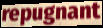
repugnant